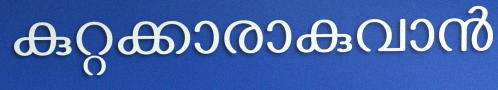
കുറ്റക്കാരാകുവാൻ